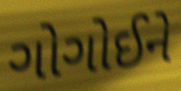
ગોગોઈને